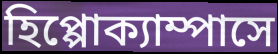
হিপ্পোক্যাম্পাসে